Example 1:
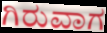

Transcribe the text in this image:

ಗಿರುವಾಗ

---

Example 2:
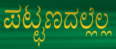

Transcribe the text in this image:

ಪಟ್ಟಣದಲ್ಲೆಲ್ಲ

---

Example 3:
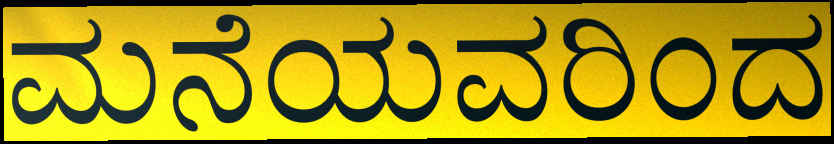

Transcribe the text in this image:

ಮನೆಯವರಿಂದ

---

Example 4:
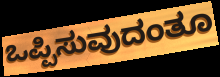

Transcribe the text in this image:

ಒಪ್ಪಿಸುವುದಂತೂ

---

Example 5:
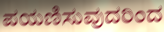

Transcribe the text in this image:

ಪಯಣಿಸುವುದರಿಂದ